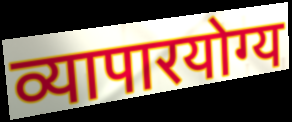
व्यापारयोग्य